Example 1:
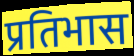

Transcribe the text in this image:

प्रतिभास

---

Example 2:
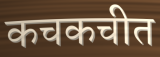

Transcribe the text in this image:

कचकचीत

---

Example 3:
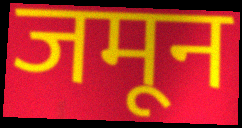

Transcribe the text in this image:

जमून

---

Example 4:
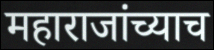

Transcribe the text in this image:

महाराजांच्याच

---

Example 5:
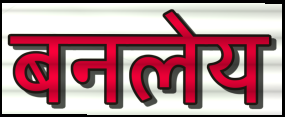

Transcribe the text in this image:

बनलेय